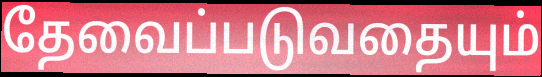
தேவைப்படுவதையும்